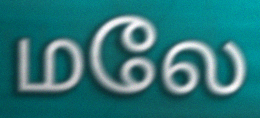
மலே